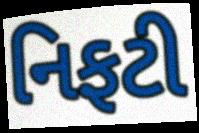
નિફટી